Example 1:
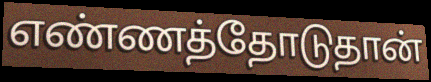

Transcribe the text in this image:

எண்ணத்தோடுதான்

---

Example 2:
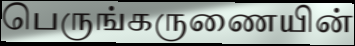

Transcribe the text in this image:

பெருங்கருணையின்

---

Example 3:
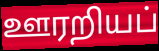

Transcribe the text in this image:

ஊரறியப்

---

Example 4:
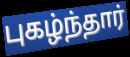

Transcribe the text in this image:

புகழ்ந்தார்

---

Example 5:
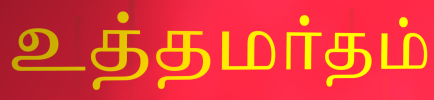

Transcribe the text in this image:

உத்தமர்தம்